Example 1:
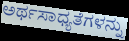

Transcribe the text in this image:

ಅರ್ಥಸಾಧ್ಯತೆಗಳನ್ನು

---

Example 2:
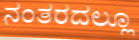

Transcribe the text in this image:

ನಂತರದಲ್ಲೂ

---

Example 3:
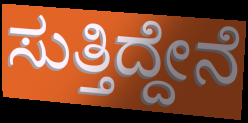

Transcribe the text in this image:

ಸುತ್ತಿದ್ದೇನೆ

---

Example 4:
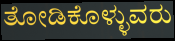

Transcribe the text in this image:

ತೋಡಿಕೊಳ್ಳುವರು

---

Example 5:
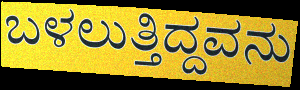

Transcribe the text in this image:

ಬಳಲುತ್ತಿದ್ದವನು